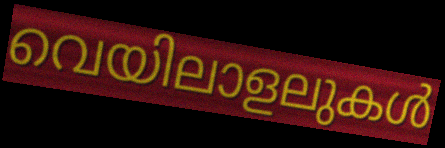
വെയിലാളലുകൾ